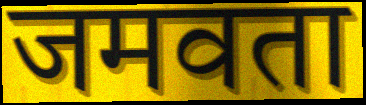
जमवता